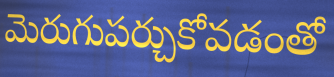
మెరుగుపర్చుకోవడంతో